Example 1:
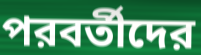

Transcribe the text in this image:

পরবর্তীদের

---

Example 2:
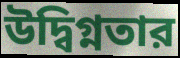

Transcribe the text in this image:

উদ্বিগ্নতার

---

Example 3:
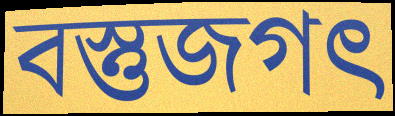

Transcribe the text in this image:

বস্তুজগৎ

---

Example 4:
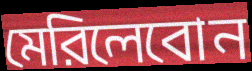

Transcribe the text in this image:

মেরিলেবোন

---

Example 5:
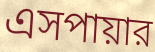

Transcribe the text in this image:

এসপায়ার